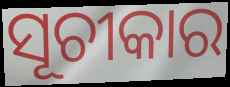
ସୂଚୀକାର